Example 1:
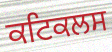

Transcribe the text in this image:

ਕਟਿਕਲਸ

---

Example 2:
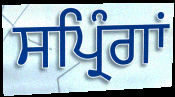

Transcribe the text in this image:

ਸਪ੍ਰਿੰਗਾਂ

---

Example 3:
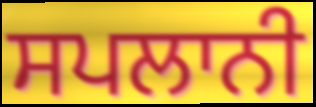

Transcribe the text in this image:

ਸਪਲਾਨੀ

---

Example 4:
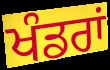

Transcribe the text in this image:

ਖੰਡਰਾਂ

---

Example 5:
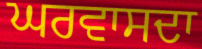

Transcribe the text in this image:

ਘਰਵਾਸਦਾ